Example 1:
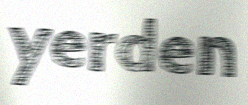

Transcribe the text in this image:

yerden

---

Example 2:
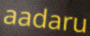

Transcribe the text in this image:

aadaru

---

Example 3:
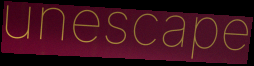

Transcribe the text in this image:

unescape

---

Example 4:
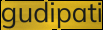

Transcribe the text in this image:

gudipati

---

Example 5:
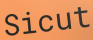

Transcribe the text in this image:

Sicut